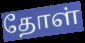
தோள்